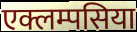
एक्लम्पसिया